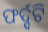
ଫର୍ଦ୍ଦଟି